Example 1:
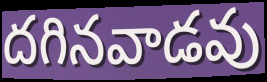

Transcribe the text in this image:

దగినవాడవు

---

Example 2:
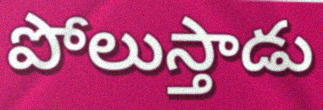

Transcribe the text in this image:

పోలుస్తాడు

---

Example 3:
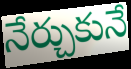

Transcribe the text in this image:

నేర్చుకునే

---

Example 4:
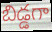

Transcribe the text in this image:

బిడ్డగా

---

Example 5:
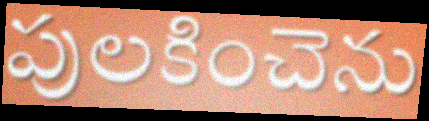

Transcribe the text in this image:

పులకించెను